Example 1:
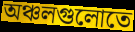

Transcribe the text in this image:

অঞ্চলগুলোতে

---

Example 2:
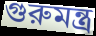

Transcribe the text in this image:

গুরুমন্ত্র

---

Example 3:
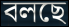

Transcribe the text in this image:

বলছে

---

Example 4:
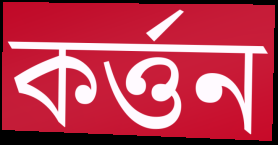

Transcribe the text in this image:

কর্ত্তন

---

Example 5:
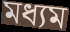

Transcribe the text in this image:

মধ্যম